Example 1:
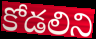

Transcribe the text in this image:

కోడలిని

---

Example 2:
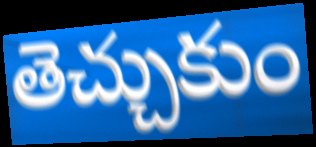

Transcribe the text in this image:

తెచ్చుకుం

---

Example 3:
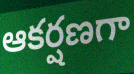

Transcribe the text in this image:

ఆకర్షణగా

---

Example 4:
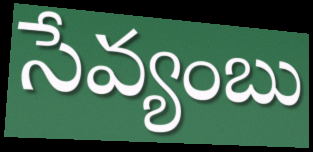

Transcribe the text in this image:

సేవ్యంబు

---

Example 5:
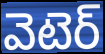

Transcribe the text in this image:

వెటెర్